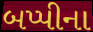
બપ્પીના